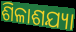
ଶିଳାଶଯ୍ୟା